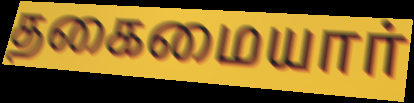
தகைமையார்